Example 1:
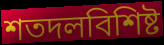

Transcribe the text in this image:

শতদলবিশিষ্ট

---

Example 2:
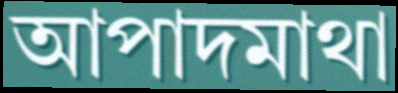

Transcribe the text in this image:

আপাদমাথা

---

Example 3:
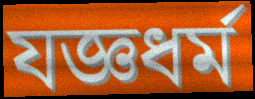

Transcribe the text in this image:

যজ্ঞধর্ম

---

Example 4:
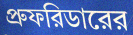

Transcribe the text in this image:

প্রুফরিডারের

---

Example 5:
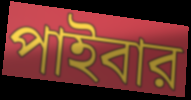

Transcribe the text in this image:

পাইবার